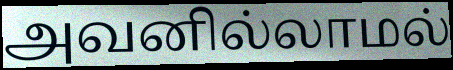
அவனில்லாமல்